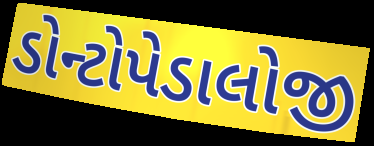
ડોન્ટોપેડાલોજી